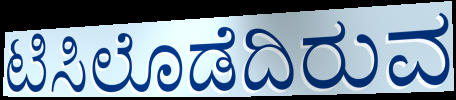
ಟಿಸಿಲೊಡೆದಿರುವ